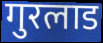
गुरलाड